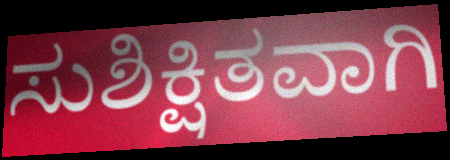
ಸುಶಿಕ್ಷಿತವಾಗಿ